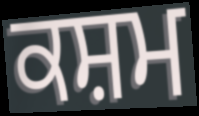
ਕਸ਼ਮ